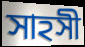
সাহসী